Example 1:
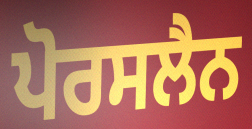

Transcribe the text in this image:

ਪੋਰਸਲੈਨ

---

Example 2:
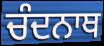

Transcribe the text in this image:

ਚੰਦਨਾਥ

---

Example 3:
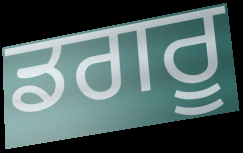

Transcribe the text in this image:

ਡਗਰੂ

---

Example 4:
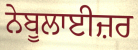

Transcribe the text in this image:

ਨੇਬੂਲਾਈਜ਼ਰ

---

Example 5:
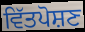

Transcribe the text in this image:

ਵਿੱਤਪੋਸ਼ਣ